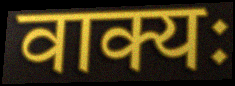
वाक्यः